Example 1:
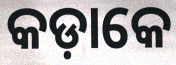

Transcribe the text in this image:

କଡ଼ାକେ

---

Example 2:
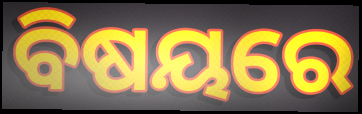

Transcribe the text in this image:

ବିଷୟରେ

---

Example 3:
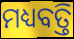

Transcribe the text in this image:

ମଧ୍ୟବତ୍ତି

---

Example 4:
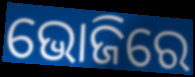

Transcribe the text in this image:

ଭୋଜିରେ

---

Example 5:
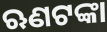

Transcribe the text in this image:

ଋଣଟଙ୍କା